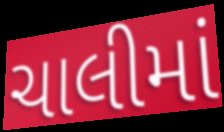
ચાલીમાં